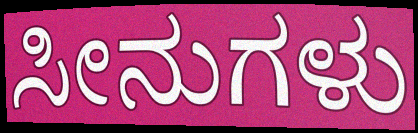
ಸೀನುಗಳು